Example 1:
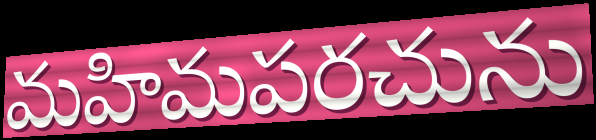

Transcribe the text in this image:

మహిమపరచును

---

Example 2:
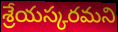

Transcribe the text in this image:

శ్రేయస్కరమని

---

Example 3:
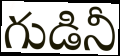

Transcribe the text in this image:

గుడినీ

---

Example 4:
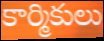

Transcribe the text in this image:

కార్మికులు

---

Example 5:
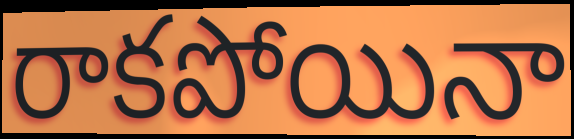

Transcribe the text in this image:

రాకపోయినా